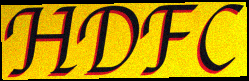
HDFC